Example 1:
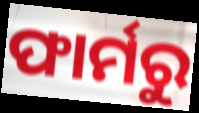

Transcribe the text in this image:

ଫାର୍ମରୁ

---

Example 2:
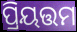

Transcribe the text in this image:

ପ୍ରିୟତ୍ତମ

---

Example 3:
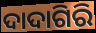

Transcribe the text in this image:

ଦାଦାଗିରି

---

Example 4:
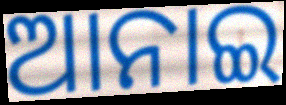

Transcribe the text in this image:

ଆନାଇ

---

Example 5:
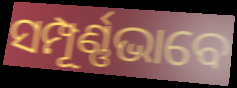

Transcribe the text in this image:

ସମ୍ପୂର୍ଣ୍ଣଭାବେ